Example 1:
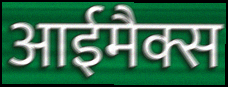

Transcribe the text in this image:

आईमैक्स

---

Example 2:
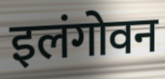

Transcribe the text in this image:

इलंगोवन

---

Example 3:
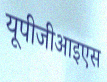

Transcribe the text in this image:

यूपीजीआइएस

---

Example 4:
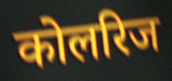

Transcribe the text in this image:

कोलरिज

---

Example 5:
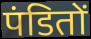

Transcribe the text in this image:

पंडितों